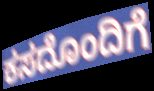
ಕಸದೊಂದಿಗೆ